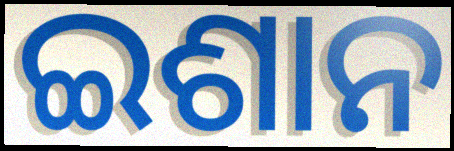
ଇଶାନ